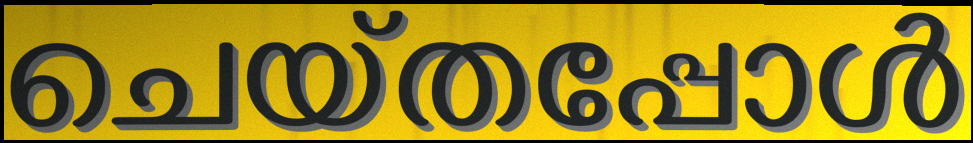
ചെയ്‌തപ്പോൾ